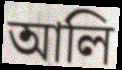
আলি